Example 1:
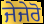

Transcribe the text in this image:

ਜੇਜੇਰੋ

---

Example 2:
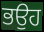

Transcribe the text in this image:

ਭਉਹ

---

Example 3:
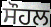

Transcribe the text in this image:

ਸੌਹਲ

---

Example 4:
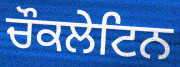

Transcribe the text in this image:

ਚੌਕਲੇਟਿਨ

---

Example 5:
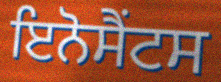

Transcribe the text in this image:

ਇਨੋਸੈਂਟਸ